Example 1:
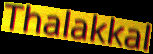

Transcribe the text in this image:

Thalakkal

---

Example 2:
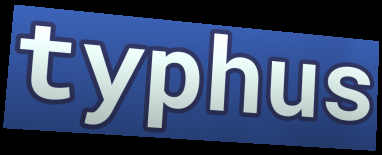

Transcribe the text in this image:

typhus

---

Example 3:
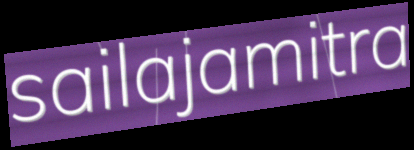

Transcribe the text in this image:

sailajamitra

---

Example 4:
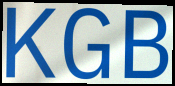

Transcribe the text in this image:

KGB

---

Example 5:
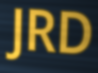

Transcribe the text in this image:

JRD